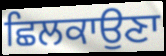
ਛਿਲਕਾਉਣਾ